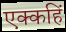
एक्कहिं